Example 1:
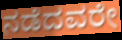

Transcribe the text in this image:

ನಡೆದವರೇ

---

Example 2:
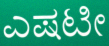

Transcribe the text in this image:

ಎಷಟೀ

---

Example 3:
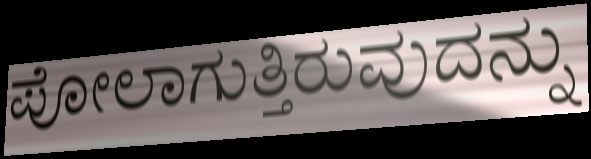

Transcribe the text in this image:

ಪೋಲಾಗುತ್ತಿರುವುದನ್ನು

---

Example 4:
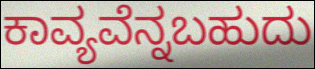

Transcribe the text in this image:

ಕಾವ್ಯವೆನ್ನಬಹುದು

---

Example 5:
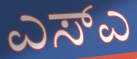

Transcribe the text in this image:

ಎಸ್ಎ